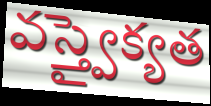
వస్త్వైక్యత